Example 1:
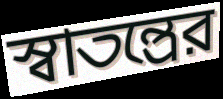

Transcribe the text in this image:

স্বাতন্ত্রের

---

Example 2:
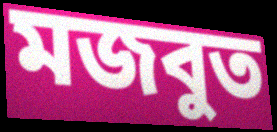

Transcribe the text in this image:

মজবুত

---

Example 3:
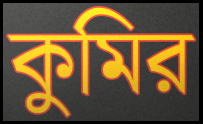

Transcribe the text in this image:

কুমির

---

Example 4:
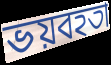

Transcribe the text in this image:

ভয়বহতা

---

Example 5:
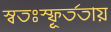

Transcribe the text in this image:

স্বতঃস্ফূর্ততায়